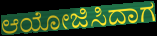
ಆಯೋಜಿಸಿದಾಗ